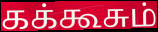
கக்கூசும்